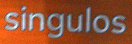
singulos